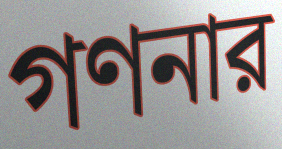
গণনার